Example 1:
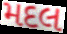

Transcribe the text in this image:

મદલ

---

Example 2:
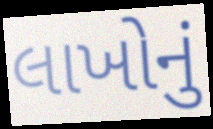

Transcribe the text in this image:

લાખોનું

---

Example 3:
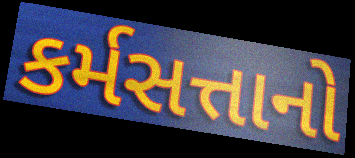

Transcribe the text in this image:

કર્મસત્તાનો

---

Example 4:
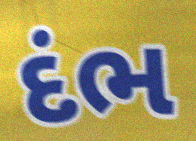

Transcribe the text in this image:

દંભ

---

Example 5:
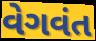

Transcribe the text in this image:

વેગવંત